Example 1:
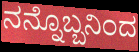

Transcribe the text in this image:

ನನ್ನೊಬ್ಬನಿಂದ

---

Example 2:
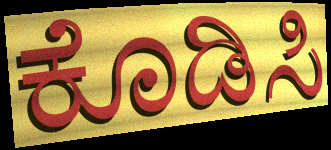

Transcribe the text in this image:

ಕೊಡಿಸಿ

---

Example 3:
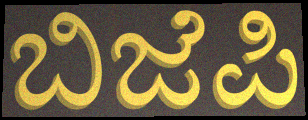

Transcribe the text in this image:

ಬಿಜೆಪಿ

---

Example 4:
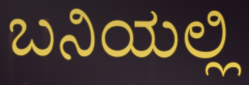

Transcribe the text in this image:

ಬನಿಯಲ್ಲಿ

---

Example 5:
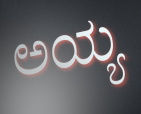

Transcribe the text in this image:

ಅಯ್ಯ